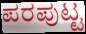
ಪರಪುಟ್ಟ